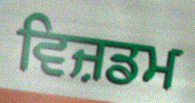
ਵਿਜ਼ਡਮ